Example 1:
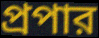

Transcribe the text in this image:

প্রপার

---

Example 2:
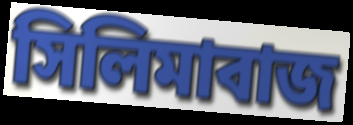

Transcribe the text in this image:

সিলিমাবাজ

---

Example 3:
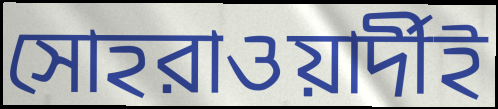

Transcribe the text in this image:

সোহরাওয়ার্দীই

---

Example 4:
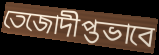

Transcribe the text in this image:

তেজোদীপ্তভাবে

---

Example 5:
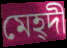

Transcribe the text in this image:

মেহ্দী